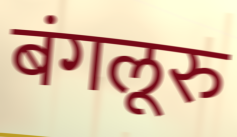
बंगलूरु